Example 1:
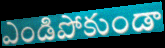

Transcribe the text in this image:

ఎండిపోకుండా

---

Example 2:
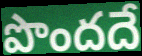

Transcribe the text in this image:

పొందదే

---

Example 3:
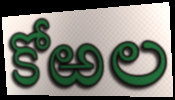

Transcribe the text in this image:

కోఱల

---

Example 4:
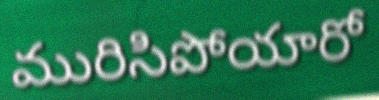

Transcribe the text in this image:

మురిసిపోయారో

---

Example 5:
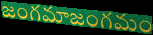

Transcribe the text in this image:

జంగమాజంగమం